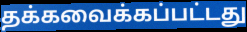
தக்கவைக்கப்பட்டது